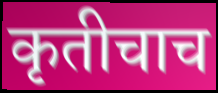
कृतीचाच